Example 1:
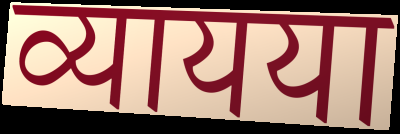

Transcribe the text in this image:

व्यायया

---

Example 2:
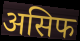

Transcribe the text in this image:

असिफ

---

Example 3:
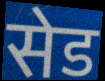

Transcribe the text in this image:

सेड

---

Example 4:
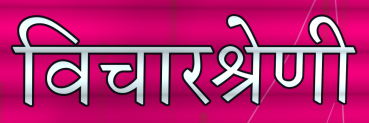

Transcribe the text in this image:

विचारश्रेणी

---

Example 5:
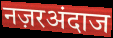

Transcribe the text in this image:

नज़रअंदाज